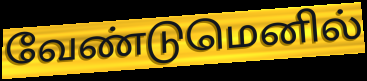
வேண்டுமெனில்